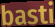
basti